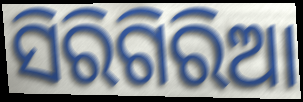
ସିରିଗିରିଆ